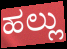
ಹಲ್ಲು